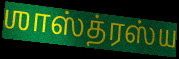
ஶாஸ்த்ரஸ்ய